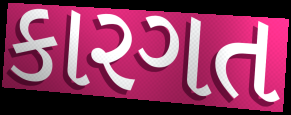
કારગત